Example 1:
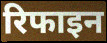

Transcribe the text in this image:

रिफाइन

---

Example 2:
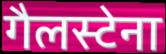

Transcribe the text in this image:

गैलस्टेना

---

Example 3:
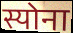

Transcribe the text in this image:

स्योना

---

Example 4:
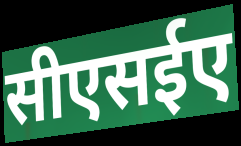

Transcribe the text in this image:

सीएसईए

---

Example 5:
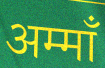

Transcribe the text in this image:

अम्माँ